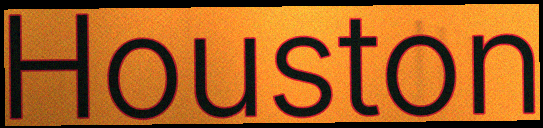
Houston